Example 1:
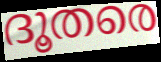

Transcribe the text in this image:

ദൂതരെ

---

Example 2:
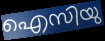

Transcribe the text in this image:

ഐസിയു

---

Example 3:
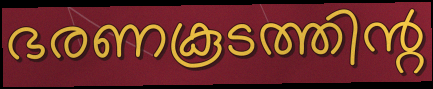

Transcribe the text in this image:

ഭരണകൂടത്തിന്റ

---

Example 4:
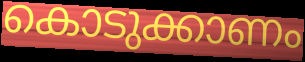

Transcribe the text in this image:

കൊടുക്കാണം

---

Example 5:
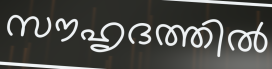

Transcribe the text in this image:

സൗഹൃദത്തിൽ